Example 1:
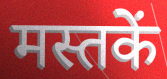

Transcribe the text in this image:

मस्तकें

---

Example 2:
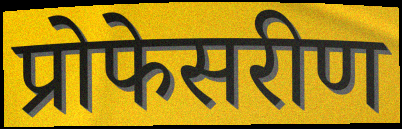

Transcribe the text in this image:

प्रोफेसरीण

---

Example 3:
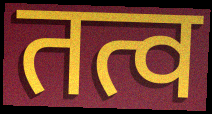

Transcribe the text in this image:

तत्व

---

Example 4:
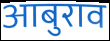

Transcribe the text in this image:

आबुराव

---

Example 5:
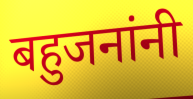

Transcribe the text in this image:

बहुजनांनी